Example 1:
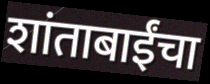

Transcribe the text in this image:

शांताबाईंचा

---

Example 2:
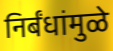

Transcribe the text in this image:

निर्बंधांमुळे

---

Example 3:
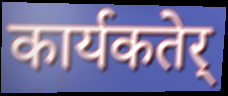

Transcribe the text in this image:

कार्यकतेर्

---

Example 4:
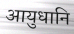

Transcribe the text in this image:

आयुधानि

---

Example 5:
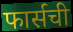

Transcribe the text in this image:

फार्सची